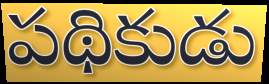
పథికుడు